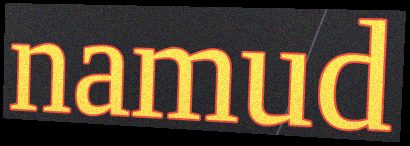
namud